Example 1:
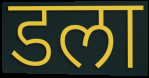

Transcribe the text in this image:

डला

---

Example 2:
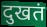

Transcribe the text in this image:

दुखतं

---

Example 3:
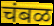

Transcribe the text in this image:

चंबळ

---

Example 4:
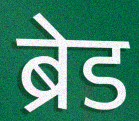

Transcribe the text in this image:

ब्रेड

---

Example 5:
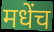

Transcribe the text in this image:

मधेंच